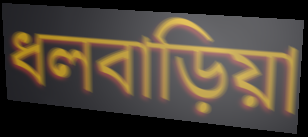
ধলবাড়িয়া